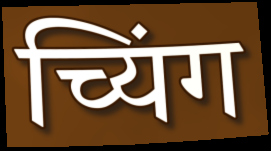
च्यिंग